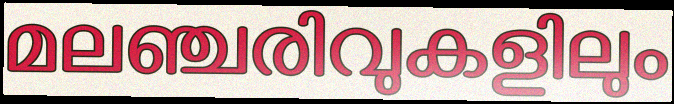
മലഞ്ചരിവുകളിലും